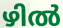
ഴിൽ